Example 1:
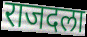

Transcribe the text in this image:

राजदला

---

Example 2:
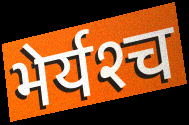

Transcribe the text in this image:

भेर्यश्च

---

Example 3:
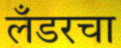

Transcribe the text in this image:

लँडरचा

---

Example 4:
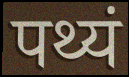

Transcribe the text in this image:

पथ्यं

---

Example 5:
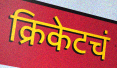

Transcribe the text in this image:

क्रिकेटचं